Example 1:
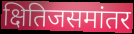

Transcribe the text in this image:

क्षितिजसमांतर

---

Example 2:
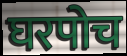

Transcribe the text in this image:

घरपोच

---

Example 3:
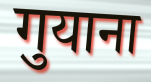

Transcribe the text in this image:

गुयाना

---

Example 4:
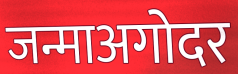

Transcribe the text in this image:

जन्माअगोदर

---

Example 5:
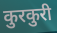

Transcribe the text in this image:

कुरकुरी